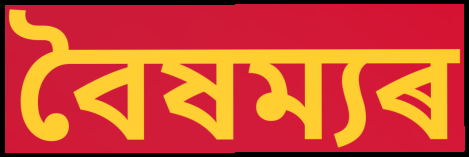
বৈষম্যৰ